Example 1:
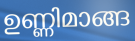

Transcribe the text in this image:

ഉണ്ണിമാങ്ങ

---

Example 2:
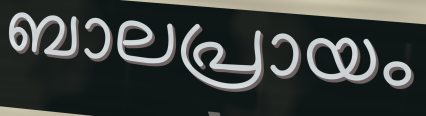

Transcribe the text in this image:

ബാലപ്രായം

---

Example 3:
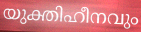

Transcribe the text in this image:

യുക്തിഹീനവും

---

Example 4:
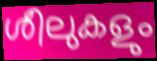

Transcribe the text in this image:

ശീലുകളും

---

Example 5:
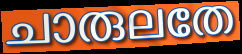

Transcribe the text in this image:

ചാരുലതേ